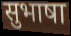
सुभाषा